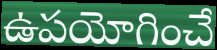
ఉపయోగించే